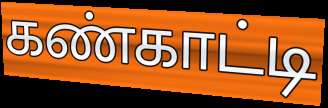
கண்காட்டி